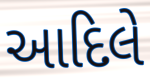
આદિલે